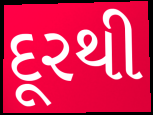
દૂરથી